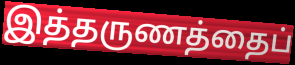
இத்தருணத்தைப்